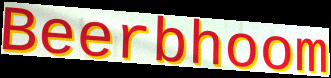
Beerbhoom